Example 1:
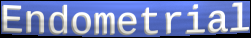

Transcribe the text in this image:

Endometrial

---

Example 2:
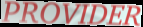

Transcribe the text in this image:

PROVIDER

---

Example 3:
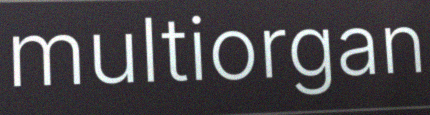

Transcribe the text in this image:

multiorgan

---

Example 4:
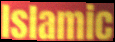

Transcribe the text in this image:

lslamic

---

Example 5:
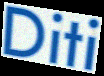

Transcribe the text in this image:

Diti